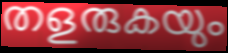
തളരുകയും